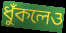
ধুঁকলেও